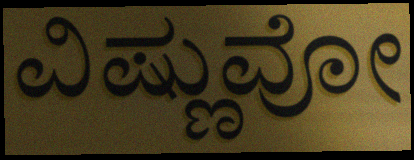
ವಿಷ್ಣುವೋ